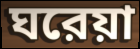
ঘরেয়া